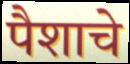
पैशाचे